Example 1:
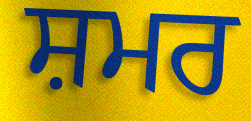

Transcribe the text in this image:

ਸ਼ਮਰ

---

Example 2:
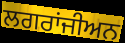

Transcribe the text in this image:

ਲਗਰਾਂਜੀਅਨ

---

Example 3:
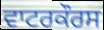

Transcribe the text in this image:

ਵਾਟਰਕੌਰਸ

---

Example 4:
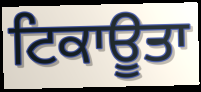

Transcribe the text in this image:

ਟਿਕਾਊਤਾ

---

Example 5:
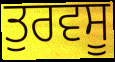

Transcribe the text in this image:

ਤੁਰਵਸੂ